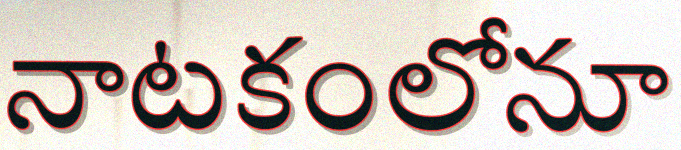
నాటకంలోనూ